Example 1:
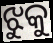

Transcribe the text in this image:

ଝୁକୁ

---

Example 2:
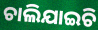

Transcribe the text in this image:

ଚାଲିଯାଇଚି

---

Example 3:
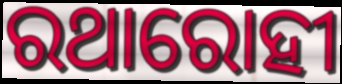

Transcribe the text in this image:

ରଥାରୋହୀ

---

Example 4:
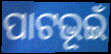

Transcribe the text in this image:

ପାଟଭୂଇଁ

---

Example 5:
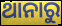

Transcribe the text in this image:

ଥାନାରୁ